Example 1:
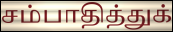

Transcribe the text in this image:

சம்பாதித்துக்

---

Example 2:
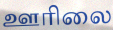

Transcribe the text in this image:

ஊரிலை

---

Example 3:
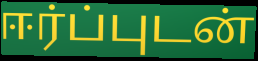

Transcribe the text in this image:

ஈர்ப்புடன்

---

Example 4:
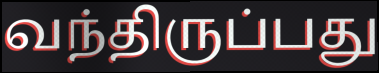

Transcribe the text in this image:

வந்திருப்பது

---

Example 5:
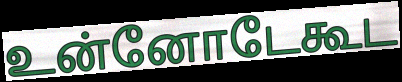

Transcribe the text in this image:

உன்னோடேகூட